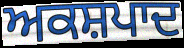
ਅਕਸ਼ਪਾਦ